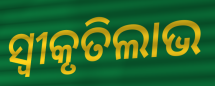
ସ୍ଵୀକୃତିଲାଭ